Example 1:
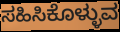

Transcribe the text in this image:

ಸಹಿಸಿಕೊಳ್ಳುವ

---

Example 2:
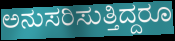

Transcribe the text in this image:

ಅನುಸರಿಸುತ್ತಿದ್ದರೂ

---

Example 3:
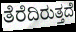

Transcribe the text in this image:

ತೆರೆದಿರುತ್ತದೆ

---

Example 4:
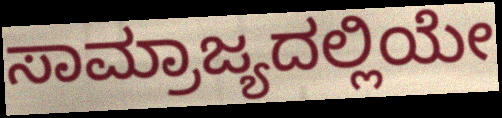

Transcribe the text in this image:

ಸಾಮ್ರಾಜ್ಯದಲ್ಲಿಯೇ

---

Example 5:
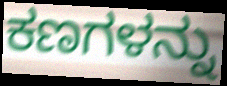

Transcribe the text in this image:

ಕಣಗಳನ್ನು